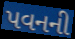
પવનની